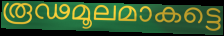
രൂഢമൂലമാകട്ടെ